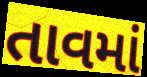
તાવમાં